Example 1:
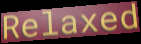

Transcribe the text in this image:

Relaxed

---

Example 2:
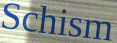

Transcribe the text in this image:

Schism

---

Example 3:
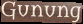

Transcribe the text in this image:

Gunung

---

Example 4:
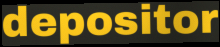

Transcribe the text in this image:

depositor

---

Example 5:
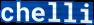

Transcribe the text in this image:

chelli